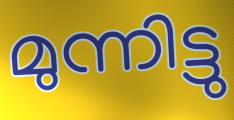
മുന്നിട്ടു